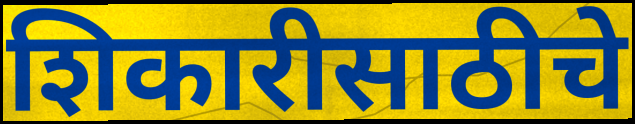
शिकारीसाठीचे